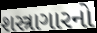
શસ્ત્રાગારનો